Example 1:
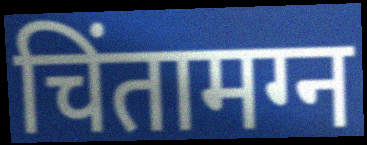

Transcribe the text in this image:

चिंतामग्न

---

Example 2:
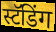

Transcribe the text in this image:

स्टॅडिंग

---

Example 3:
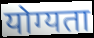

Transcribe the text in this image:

योग्यता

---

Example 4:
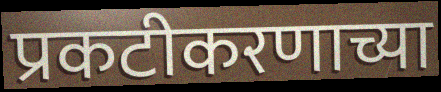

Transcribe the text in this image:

प्रकटीकरणाच्या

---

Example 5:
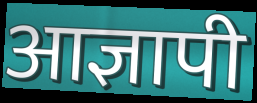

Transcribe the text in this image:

आज्ञापी